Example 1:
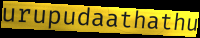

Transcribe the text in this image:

urupudaathathu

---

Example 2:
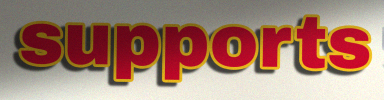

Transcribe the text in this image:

supports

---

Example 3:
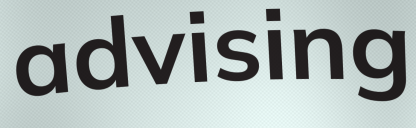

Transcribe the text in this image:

advising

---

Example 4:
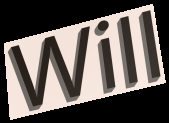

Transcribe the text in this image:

Will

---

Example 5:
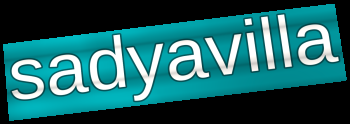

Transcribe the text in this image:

sadyavilla